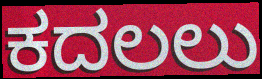
ಕದಲಲು